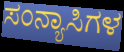
ಸಂನ್ಯಾಸಿಗಳ